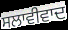
ਸਲਾਵੀਵਾਦ